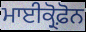
ਮਾਈਕ੍ਰੋਫ਼ੋਨ